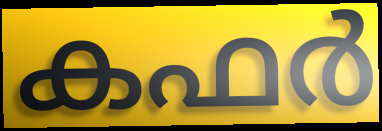
കഫർ